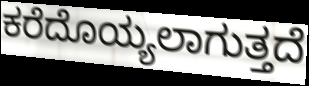
ಕರೆದೊಯ್ಯಲಾಗುತ್ತದೆ